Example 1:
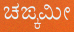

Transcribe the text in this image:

ಚಙ್ಕಮೀ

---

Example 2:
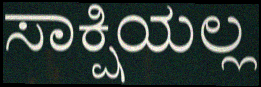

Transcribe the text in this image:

ಸಾಕ್ಷಿಯಲ್ಲ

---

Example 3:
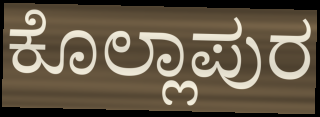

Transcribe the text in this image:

ಕೊಲ್ಲಾಪುರ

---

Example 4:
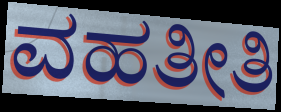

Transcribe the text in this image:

ವಹತೀತಿ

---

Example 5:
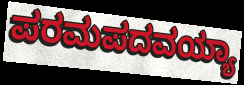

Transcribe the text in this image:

ಪರಮಪದವಯ್ಯಾ